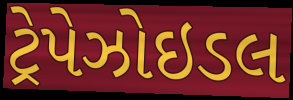
ટ્રેપેઝોઇડલ